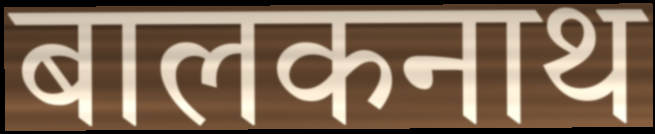
बालकनाथ